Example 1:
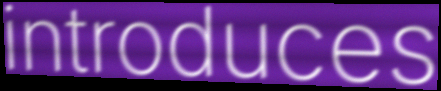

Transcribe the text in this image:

introduces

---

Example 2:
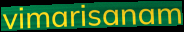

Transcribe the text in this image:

vimarisanam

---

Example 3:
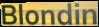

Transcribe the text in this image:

Blondin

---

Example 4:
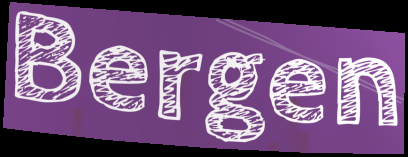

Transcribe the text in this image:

Bergen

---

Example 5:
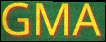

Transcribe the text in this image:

GMA